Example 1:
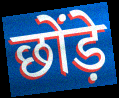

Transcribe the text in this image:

छोंड़े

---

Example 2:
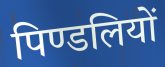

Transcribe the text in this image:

पिण्डलियों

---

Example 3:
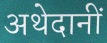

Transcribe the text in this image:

अथेदानीं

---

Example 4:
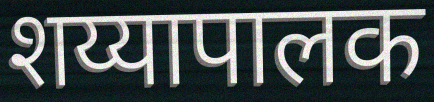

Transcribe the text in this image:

शय्यापालक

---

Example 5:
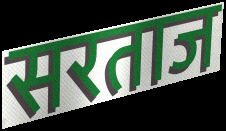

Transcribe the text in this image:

सरताज